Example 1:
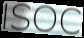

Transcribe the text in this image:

ISOC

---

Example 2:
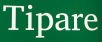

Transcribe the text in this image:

Tipare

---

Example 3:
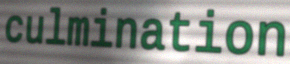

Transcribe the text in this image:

culmination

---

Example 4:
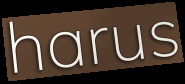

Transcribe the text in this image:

harus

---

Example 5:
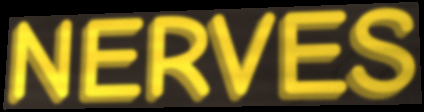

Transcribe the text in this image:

NERVES